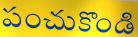
పంచుకొండి